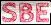
SBE